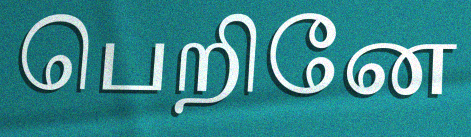
பெறினே